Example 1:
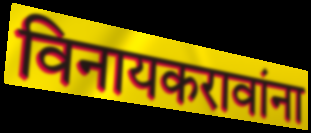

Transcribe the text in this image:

विनायकरावांना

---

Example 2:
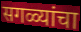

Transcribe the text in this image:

सगळ्यांचा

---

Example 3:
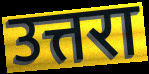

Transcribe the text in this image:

उत्तरा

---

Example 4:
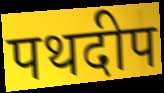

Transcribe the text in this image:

पथदीप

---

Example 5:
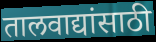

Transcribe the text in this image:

तालवाद्यांसाठी